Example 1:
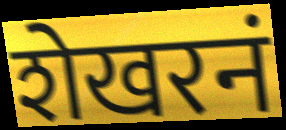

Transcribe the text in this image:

शेखरनं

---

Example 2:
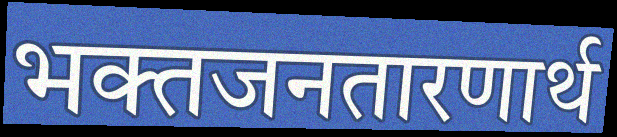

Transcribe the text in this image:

भक्तजनतारणार्थ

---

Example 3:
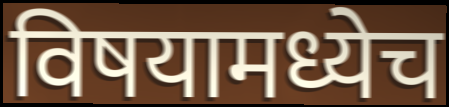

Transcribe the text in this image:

विषयामध्येच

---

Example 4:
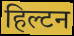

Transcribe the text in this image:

हिल्टन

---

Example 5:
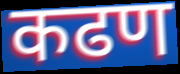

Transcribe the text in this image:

कढण